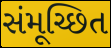
સંમૂચ્છિત